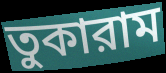
তুকারাম